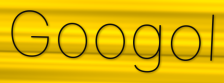
Googol